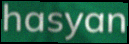
hasyan